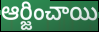
ఆర్జించాయి